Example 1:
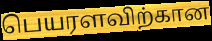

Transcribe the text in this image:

பெயரளவிற்கான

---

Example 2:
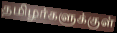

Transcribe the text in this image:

தமிழர்களுக்குள்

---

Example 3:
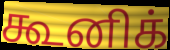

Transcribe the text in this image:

கூனிக்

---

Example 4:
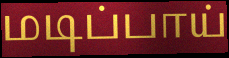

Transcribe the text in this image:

மடிப்பாய்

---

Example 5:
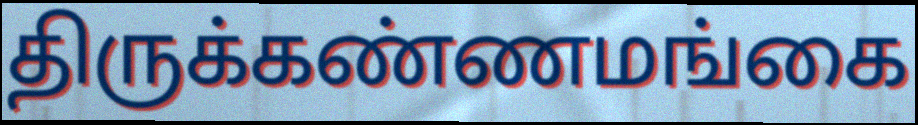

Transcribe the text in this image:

திருக்கண்ணமங்கை